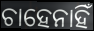
ଚାହେନାହିଁ